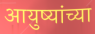
आयुष्यांच्या